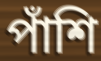
পাঁশি